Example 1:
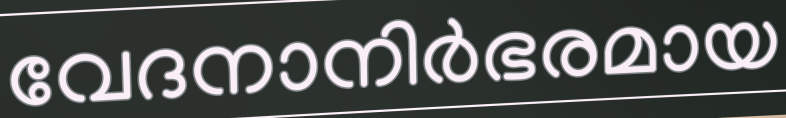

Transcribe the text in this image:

വേദനാനിർഭരമായ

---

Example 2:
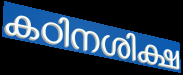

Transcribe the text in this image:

കഠിനശിക്ഷ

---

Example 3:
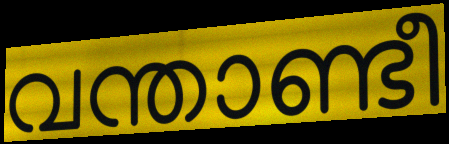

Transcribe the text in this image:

വന്താണ്ടീ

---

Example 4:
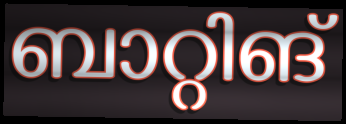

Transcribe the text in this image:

ബാറ്റിങ്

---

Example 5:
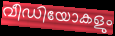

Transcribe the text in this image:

വീഡിയോകളും